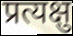
प्रत्यक्षु